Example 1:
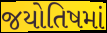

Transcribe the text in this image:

જયોતિષમાં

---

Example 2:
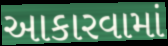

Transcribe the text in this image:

આકારવામાં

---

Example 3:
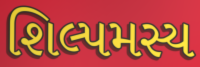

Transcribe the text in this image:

શિલ્પમસ્ય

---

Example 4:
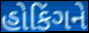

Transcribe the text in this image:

હોકિંગને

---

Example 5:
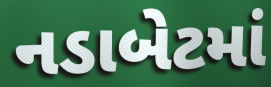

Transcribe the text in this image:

નડાબેટમાં